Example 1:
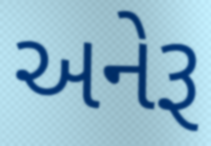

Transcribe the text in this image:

અનેરૂ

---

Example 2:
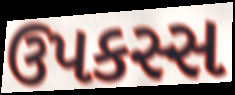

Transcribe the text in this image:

ઉપકસ્સ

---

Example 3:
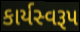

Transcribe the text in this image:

કાર્યસ્વરૂપ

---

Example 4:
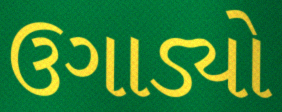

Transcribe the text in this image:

ઉગાડ્યો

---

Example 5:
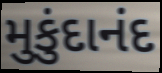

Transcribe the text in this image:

મુકુંદાનંદ